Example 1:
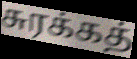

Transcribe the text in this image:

சுரக்கத்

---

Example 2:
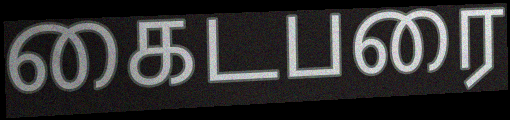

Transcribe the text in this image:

கைடபரை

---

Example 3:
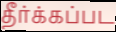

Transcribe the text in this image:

தீர்க்கப்பட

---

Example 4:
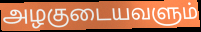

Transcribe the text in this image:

அழகுடையவளும்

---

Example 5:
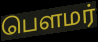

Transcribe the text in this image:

பௌமர்